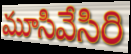
మూసివేసిరి